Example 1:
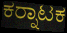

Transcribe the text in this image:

ಕರ‍್ನಾಟಕ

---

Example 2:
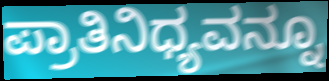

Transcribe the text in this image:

ಪ್ರಾತಿನಿಧ್ಯವನ್ನೂ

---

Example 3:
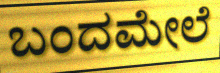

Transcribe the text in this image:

ಬಂದಮೇಲೆ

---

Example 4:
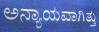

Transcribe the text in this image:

ಅನ್ಯಾಯವಾಗಿತ್ತು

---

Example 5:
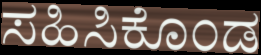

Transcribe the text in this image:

ಸಹಿಸಿಕೊಂಡ